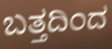
ಬತ್ತದಿಂದ